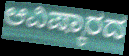
ಆವಿಷ್ಕಾರದ